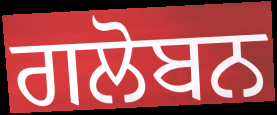
ਗਲੋਬਨ